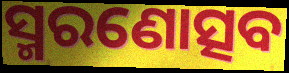
ସ୍ମରଣୋତ୍ସବ